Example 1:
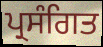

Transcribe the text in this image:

ਪ੍ਰਸੰਗਿਤ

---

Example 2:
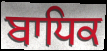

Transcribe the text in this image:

ਬਾਧਿਕ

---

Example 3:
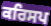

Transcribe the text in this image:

ਕਰਿਸਪ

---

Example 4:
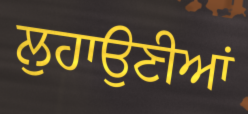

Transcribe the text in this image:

ਲੁਹਾਉਣੀਆਂ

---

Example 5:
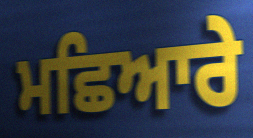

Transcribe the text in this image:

ਮਛਿਆਰੇ